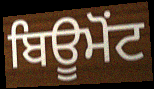
ਬਿਊਮੋਂਟ